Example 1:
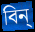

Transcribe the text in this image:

বিন্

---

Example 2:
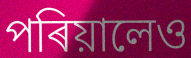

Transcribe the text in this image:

পৰিয়ালেও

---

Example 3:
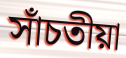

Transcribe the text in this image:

সাঁচতীয়া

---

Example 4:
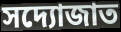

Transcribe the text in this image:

সদ্যোজাত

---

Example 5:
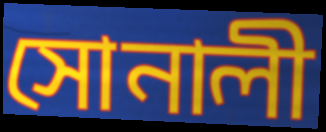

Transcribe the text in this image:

সোনালী